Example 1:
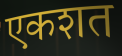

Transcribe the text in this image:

एकशत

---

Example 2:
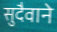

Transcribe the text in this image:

सुदैवाने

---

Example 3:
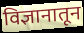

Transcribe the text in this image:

विज्ञानातून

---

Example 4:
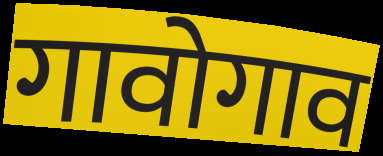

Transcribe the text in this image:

गावोगाव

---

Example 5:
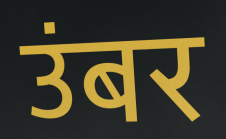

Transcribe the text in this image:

उंबर